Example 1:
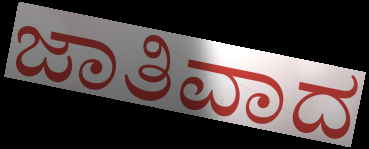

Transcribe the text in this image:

ಜಾತಿವಾದ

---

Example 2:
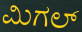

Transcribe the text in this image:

ಮಿಗಲ್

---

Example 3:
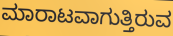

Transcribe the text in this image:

ಮಾರಾಟವಾಗುತ್ತಿರುವ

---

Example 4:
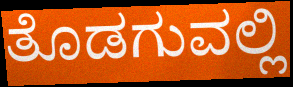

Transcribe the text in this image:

ತೊಡಗುವಲ್ಲಿ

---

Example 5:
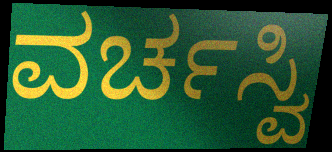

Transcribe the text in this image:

ವರ್ಚಸ್ವಿ